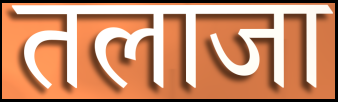
तलाजा